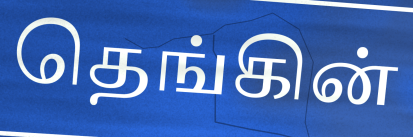
தெங்கின்